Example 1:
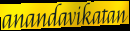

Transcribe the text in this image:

anandavikatan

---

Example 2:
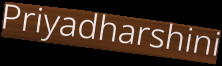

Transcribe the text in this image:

Priyadharshini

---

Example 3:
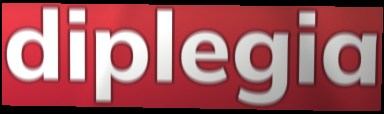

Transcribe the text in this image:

diplegia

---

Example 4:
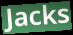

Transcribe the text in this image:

Jacks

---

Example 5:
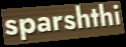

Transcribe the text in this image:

sparshthi